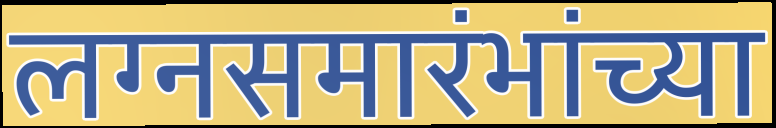
लग्नसमारंभांच्या